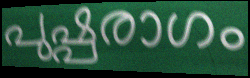
പുഷ്പരാഗം